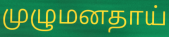
முழுமனதாய்